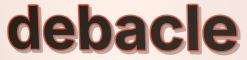
debacle